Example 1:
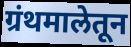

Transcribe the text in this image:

ग्रंथमालेतून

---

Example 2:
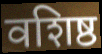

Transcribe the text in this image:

वशिष्ठ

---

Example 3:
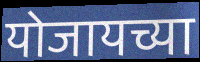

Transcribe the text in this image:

योजायच्या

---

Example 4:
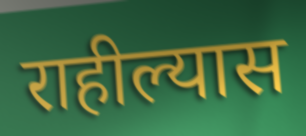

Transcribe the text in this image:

राहील्यास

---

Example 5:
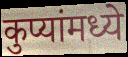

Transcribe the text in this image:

कुप्यांमध्ये